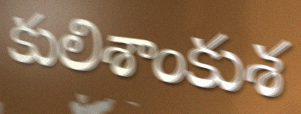
కులిశాంకుశ